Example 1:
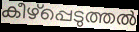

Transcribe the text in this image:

കീഴ്പ്പെടുത്തൽ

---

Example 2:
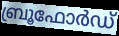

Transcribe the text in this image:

ബ്രൂഫോർഡ്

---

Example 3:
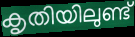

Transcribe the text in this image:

കൃതിയിലുണ്ട്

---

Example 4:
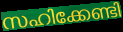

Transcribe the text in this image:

സഹിക്കേണ്ടി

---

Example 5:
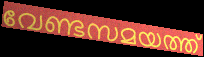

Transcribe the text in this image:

വേണ്ടസമയത്ത്